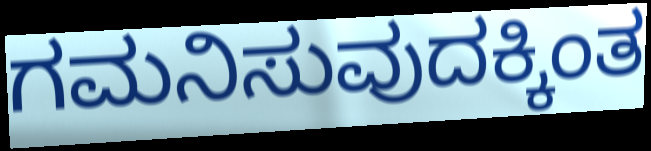
ಗಮನಿಸುವುದಕ್ಕಿಂತ